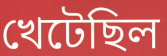
খেটেছিল